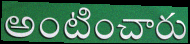
అంటించారు